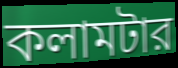
কলামটার